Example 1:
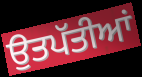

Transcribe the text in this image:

ਉਤਪੱਤੀਆਂ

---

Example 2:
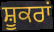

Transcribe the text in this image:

ਸ਼ੂਕਰਾਂ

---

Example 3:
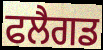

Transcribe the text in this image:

ਫਲੈਗਡ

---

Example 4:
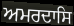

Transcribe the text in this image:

ਅਮਰਦਾਸਿ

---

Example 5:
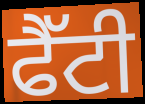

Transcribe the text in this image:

ਫੈੱਟੀ